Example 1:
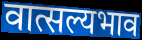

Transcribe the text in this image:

वात्सल्यभाव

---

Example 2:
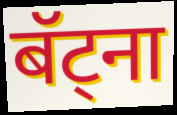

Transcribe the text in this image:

बॅट्ना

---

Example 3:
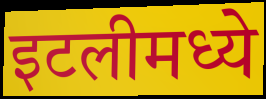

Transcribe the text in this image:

इटलीमध्ये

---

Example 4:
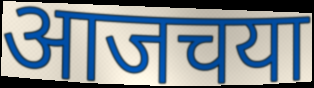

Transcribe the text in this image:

आजचया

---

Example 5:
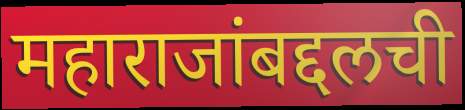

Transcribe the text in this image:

महाराजांबद्दलची